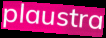
plaustra